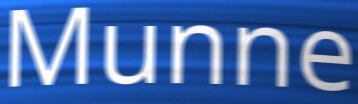
Munne